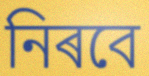
নিৰবে